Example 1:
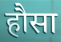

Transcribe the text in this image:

हौसा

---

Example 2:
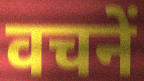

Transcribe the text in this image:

वचनें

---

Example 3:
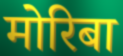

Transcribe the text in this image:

मोरिबा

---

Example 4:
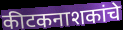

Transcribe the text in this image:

कीटकनाशकांचे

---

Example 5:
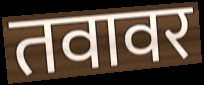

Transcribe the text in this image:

तवावर